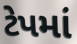
ટેપમાં